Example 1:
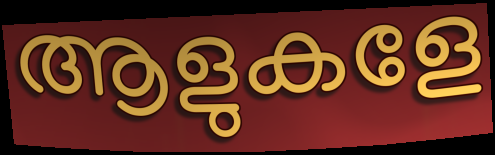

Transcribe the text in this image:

ആളുകളേ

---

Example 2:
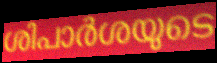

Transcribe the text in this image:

ശിപാർശയുടെ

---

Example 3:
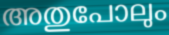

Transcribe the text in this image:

അതുപോലും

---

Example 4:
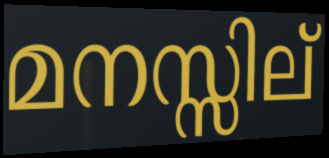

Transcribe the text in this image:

മനസ്സില്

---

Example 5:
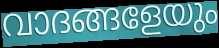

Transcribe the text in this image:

വാദങ്ങളേയും